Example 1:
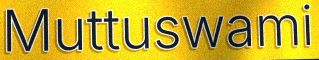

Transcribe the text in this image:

Muttuswami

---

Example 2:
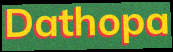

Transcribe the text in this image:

Dathopa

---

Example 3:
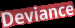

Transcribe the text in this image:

Deviance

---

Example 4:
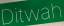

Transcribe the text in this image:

Ditwah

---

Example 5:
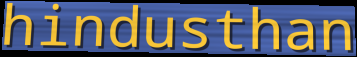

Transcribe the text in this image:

hindusthan